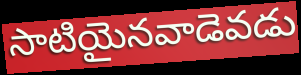
సాటియైనవాడెవడు